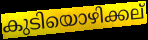
കുടിയൊഴിക്കല്